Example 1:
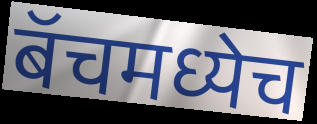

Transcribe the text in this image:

बॅचमध्येच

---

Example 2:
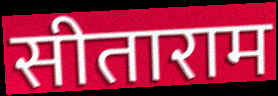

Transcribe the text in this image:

सीताराम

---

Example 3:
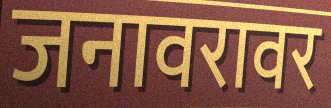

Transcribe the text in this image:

जनावरावर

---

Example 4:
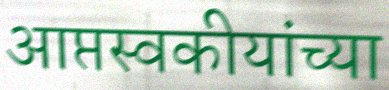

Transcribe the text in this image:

आप्तस्वकीयांच्या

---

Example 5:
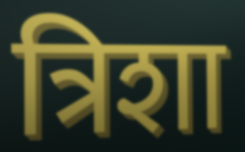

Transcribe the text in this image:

त्रिशा